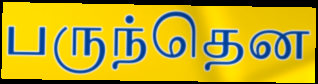
பருந்தென